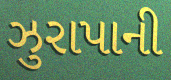
ઝુરાપાની